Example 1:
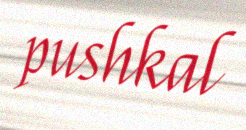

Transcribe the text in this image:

pushkal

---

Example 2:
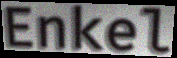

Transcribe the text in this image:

Enkel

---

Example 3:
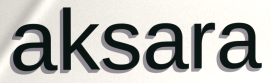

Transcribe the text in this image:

aksara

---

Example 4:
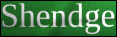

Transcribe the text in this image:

Shendge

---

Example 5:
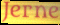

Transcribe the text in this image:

Jerne